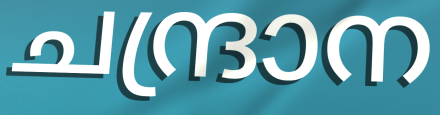
ചന്ദ്രാന